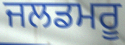
ਜਲਡਮਰੂ